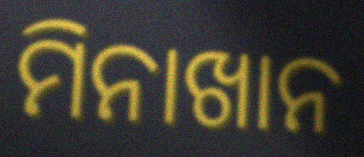
ମିନାଖାନ